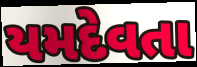
યમદેવતા